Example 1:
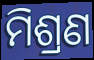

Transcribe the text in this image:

ମିଶ୍ରଣ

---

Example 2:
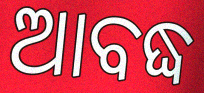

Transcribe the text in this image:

ଆବଦ୍ଧ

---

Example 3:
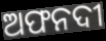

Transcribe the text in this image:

ଅଫନଦୀ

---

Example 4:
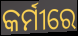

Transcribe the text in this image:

କର୍ମୀରେ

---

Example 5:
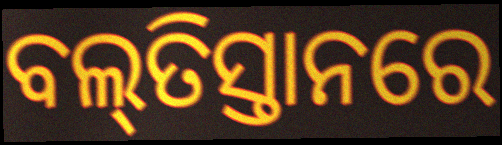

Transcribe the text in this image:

ବଲ୍‌ତିସ୍ତାନରେ